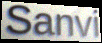
Sanvi